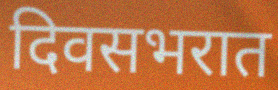
दिवसभरात